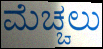
ಮೆಚ್ಚಲು